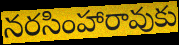
నరసింహారావుకు